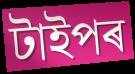
টাইপৰ